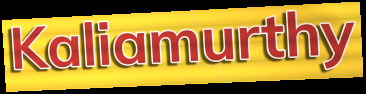
Kaliamurthy